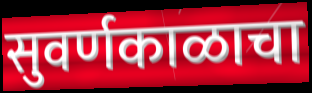
सुवर्णकाळाचा